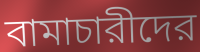
বামাচারীদের